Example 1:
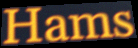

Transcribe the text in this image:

Hams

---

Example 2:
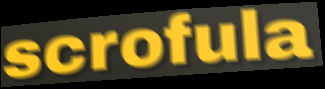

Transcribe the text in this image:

scrofula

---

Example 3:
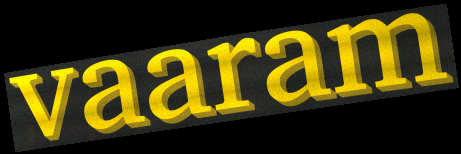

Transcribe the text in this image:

vaaram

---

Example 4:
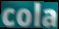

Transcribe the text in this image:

cola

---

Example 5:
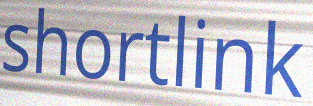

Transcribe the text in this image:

shortlink